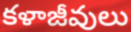
కళాజీవులు